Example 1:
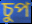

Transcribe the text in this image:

চুপ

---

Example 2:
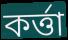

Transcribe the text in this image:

কৰ্ত্তা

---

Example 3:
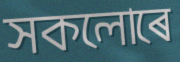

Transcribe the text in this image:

সকলোৰে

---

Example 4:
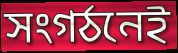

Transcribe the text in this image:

সংগঠনেই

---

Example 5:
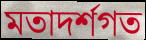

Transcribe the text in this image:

মতাদৰ্শগত